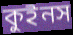
কুইনস